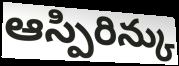
ఆస్పిరిన్కు